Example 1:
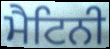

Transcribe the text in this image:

ਮੈਟਿਨੀ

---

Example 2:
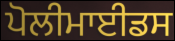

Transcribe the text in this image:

ਪੋਲੀਮਾਈਡਸ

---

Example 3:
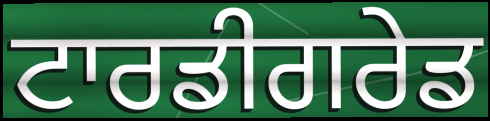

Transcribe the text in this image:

ਟਾਰਡੀਗਰੇਡ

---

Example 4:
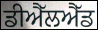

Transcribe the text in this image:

ਡੀਐੱਲਐੱਡ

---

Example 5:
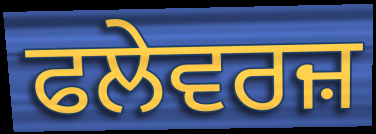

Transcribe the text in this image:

ਫਲੇਵਰਜ਼